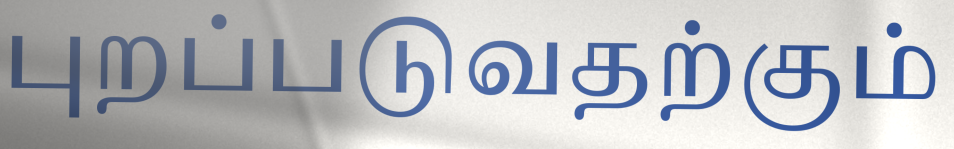
புறப்படுவதற்கும்